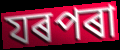
যৰপৰা